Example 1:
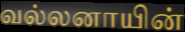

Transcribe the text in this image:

வல்லனாயின்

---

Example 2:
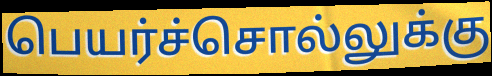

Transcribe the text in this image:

பெயர்ச்சொல்லுக்கு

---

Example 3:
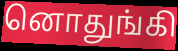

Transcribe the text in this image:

னொதுங்கி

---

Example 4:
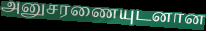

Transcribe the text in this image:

அனுசரணையுடனான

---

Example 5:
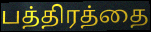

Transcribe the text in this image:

பத்திரத்தை